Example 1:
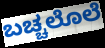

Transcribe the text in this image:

ಬಚ್ಚಲೊಲೆ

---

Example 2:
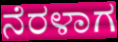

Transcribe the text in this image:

ನೆರಳಾಗ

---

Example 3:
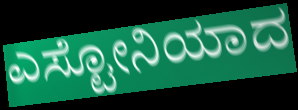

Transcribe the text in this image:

ಎಸ್ಟೋನಿಯಾದ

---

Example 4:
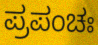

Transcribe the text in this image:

ಪ್ರಪಂಚಃ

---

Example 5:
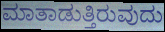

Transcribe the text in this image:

ಮಾತಾಡುತ್ತಿರುವುದು